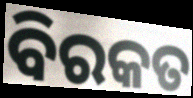
ବିରକତ